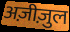
अज़ीज़ुल